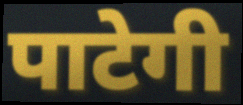
पाटेगी